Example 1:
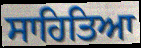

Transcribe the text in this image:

ਸਾਹਿਤਿਆ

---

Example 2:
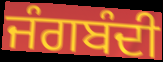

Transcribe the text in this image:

ਜੰਗਬੰਦੀ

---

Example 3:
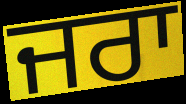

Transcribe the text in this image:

ਜਰਾ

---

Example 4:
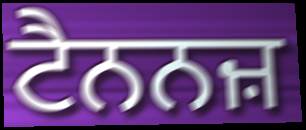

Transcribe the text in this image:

ਟੈਨਨਜ਼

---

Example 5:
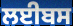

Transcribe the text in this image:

ਲਈਬਸ